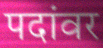
पदांवर